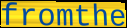
fromthe